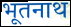
भूतनाथ